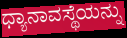
ಧ್ಯಾನಾವಸ್ಥೆಯನ್ನು